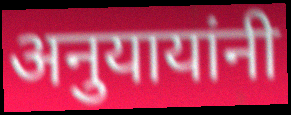
अनुयायांनी